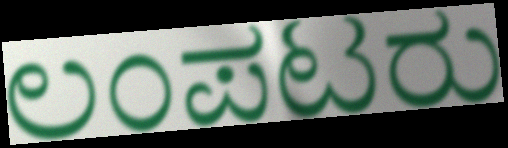
ಲಂಪಟರು